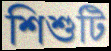
শিশুটি